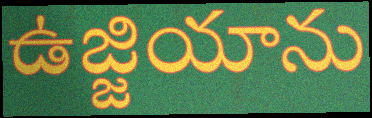
ఉజ్జియాను